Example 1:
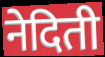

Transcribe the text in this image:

नेदिती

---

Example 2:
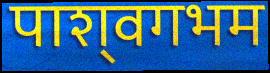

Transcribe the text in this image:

पाश्वगभम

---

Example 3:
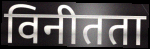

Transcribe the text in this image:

विनीतता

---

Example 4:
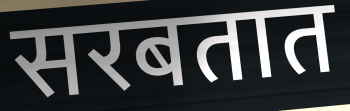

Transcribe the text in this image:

सरबतात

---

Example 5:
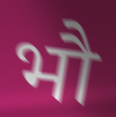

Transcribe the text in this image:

भौ